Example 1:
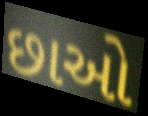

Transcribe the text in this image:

છાઓ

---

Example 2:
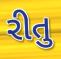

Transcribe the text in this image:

રીતુ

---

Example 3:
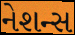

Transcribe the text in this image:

નેશન્સ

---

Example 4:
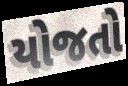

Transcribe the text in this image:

યોજતો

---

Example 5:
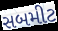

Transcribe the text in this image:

સબમીટ